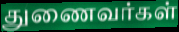
துணைவர்கள்